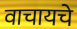
वाचायचे